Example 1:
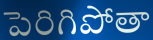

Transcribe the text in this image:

పెరిగిపోతా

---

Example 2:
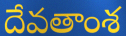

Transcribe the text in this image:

దేవతాంశ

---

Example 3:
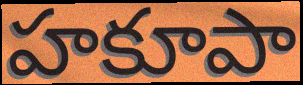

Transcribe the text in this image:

హకూపా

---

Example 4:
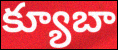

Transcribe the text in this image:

క్యూబా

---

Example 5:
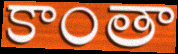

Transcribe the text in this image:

కాంతా